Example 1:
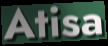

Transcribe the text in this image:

Atisa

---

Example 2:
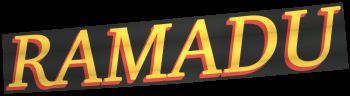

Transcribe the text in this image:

RAMADU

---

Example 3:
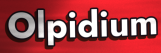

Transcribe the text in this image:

Olpidium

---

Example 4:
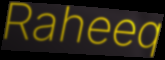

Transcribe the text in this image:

Raheeq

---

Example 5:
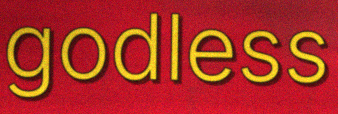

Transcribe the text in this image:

godless